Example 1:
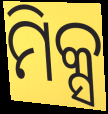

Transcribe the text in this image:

ମିକ୍ସ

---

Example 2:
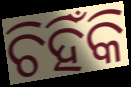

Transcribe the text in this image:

ଚିହିଁକି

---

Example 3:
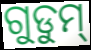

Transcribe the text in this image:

ଗୁଡୁମ୍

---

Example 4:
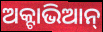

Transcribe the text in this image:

ଅକ୍ଟାଭିଆନ୍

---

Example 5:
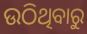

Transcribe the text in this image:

ଉଠିଥିବାରୁ